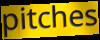
pitches